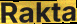
Rakta